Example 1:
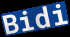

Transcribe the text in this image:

Bidi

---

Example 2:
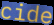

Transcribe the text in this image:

cide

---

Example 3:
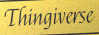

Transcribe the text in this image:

Thingiverse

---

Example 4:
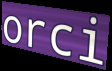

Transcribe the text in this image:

orci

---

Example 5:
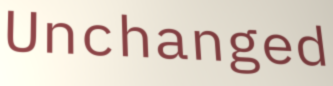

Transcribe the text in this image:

Unchanged